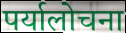
पर्यालोचना